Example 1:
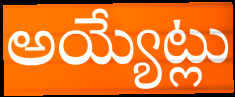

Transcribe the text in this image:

అయ్యేట్లు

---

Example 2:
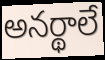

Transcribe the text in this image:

అనర్థాలే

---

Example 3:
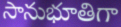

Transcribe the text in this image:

సానుభూతిగా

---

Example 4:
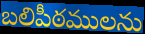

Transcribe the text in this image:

బలిపీఠములను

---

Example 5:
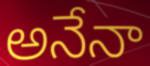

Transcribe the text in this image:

అనేనా